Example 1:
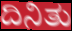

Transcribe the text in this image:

ದಿನಿತು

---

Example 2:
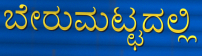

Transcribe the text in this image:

ಬೇರುಮಟ್ಟದಲ್ಲಿ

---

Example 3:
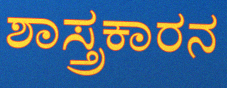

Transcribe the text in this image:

ಶಾಸ್ತ್ರಕಾರನ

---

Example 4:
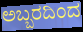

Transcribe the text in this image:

ಅಬ್ಬರದಿಂದ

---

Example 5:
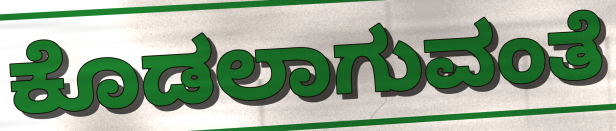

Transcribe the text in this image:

ಕೊಡಲಾಗುವಂತೆ